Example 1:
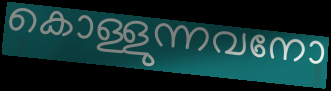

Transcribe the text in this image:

കൊള്ളുന്നവനോ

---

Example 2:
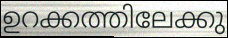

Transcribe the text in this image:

ഉറക്കത്തിലേക്കു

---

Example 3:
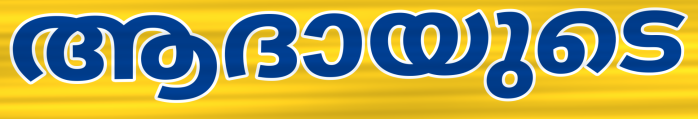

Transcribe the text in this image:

ആദായുടെ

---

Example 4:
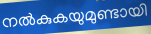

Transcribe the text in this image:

നൽകുകയുമുണ്ടായി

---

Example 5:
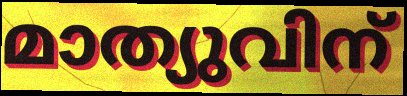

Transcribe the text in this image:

മാത്യുവിന്